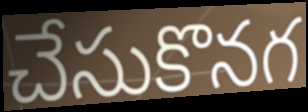
చేసుకొనగ